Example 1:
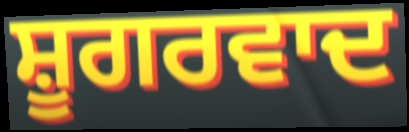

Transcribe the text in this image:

ਸ਼ੂਗਰਵਾਦ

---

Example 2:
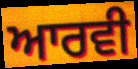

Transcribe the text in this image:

ਆਰਵੀ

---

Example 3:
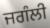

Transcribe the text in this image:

ਜਗੰਲੀ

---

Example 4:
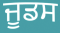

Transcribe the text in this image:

ਜੂਡਸ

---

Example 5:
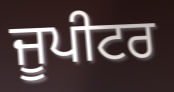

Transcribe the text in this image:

ਜੂਪੀਟਰ